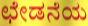
ಛೇಡನೆಯ